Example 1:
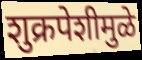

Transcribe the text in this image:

शुक्रपेशीमुळे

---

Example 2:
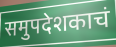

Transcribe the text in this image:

समुपदेशकाचं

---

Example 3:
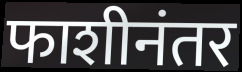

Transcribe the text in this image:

फाशीनंतर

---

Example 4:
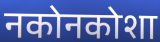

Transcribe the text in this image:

नकोनकोशा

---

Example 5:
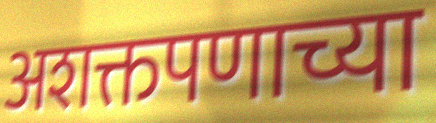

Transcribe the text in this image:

अशक्तपणाच्या